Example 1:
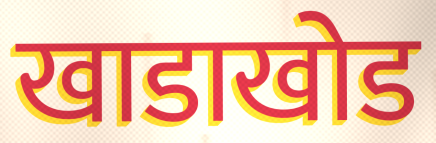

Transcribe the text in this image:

खाडाखोड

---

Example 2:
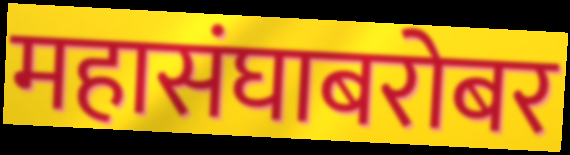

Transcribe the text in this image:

महासंघाबरोबर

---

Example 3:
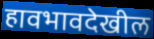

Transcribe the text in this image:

हावभावदेखील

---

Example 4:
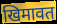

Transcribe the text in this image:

खिमावत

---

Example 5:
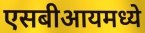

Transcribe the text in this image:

एसबीआयमध्ये